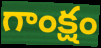
గాంక్షం